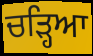
ਚਡ਼੍ਹਿਆ